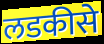
लडकीसे